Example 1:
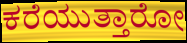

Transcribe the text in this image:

ಕರೆಯುತ್ತಾರೋ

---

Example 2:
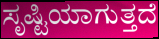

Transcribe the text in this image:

ಸೃಷ್ಟಿಯಾಗುತ್ತದೆ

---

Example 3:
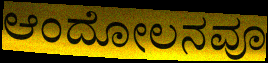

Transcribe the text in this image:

ಆಂದೋಲನವೂ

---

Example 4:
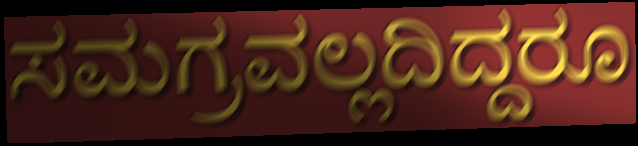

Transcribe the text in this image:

ಸಮಗ್ರವಲ್ಲದಿದ್ದರೂ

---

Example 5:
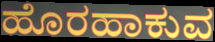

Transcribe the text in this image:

ಹೊರಹಾಕುವ